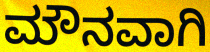
ಮೌನವಾಗಿ